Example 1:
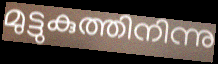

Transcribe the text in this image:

മുട്ടുകുത്തിനിന്നു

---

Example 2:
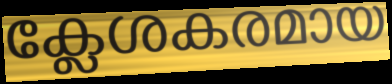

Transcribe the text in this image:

ക്ലേശകരമായ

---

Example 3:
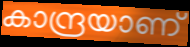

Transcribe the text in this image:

കാന്ദ്രയാണ്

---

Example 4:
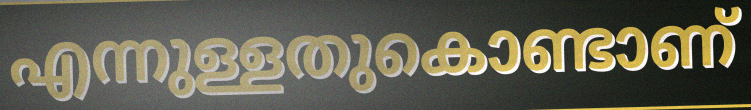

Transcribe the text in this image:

എന്നുള്ളതുകൊണ്ടാണ്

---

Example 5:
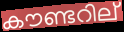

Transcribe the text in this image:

കൗണ്ടറില്